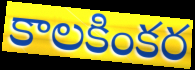
కాలకింకర